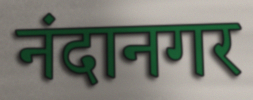
नंदानगर